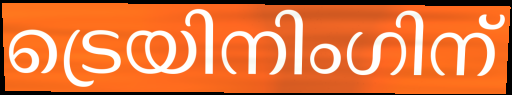
ട്രെയിനിംഗിന്